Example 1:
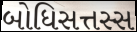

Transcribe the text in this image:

બોધિસત્તસ્સ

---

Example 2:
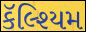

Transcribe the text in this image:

કૅલ્શ્યિમ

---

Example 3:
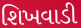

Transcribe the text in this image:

શિખવાડી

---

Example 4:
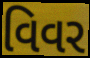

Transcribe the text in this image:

વિવર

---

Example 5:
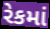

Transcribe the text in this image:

રેકમાં